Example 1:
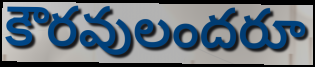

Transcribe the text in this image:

కౌరవులందరూ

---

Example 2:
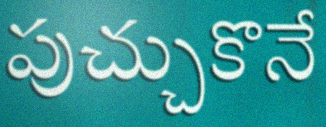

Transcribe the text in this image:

పుచ్చుకొనే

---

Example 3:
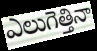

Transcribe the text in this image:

ఎలుగెత్తినా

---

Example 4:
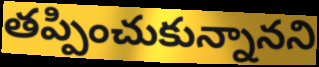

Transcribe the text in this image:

తప్పించుకున్నానని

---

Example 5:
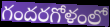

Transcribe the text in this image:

గందరగోళంలో